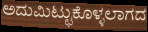
ಅದುಮಿಟ್ಟುಕೊಳ್ಳಲಾಗದ